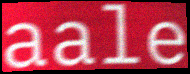
aale